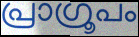
പ്രാഗ്രൂപം